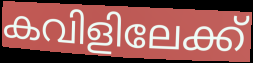
കവിളിലേക്ക്